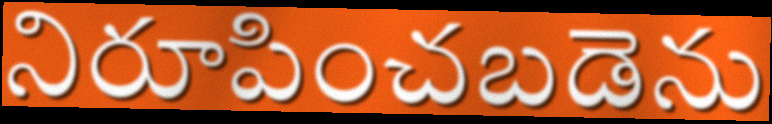
నిరూపించబడెను